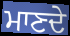
ਮਾਣਦੇ